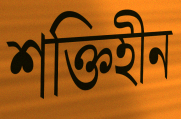
শক্তিহীন